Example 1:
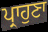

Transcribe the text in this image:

ਪ੍ਰਾਹੁਣਾ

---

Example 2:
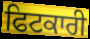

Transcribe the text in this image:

ਫਿਟਕਾਰੀ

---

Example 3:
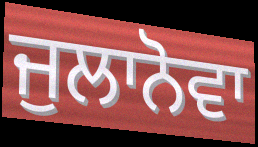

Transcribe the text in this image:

ਜੁਲਾਨੋਵਾ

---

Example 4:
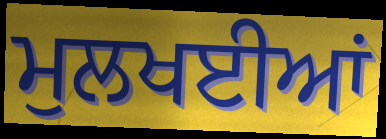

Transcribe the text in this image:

ਮੁਲਖਈਆਂ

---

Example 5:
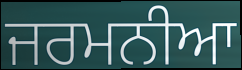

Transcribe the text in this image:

ਜਰਮਨੀਆ